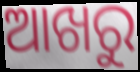
ଆଖରୁ